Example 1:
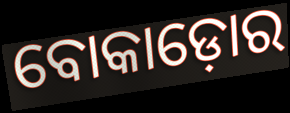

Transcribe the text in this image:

ବୋକାଡ଼ୋର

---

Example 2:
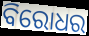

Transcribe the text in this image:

ବିରୋଧର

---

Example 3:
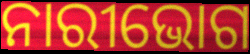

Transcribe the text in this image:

ନାରୀଭୋଗ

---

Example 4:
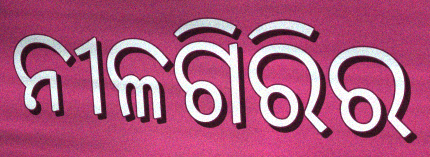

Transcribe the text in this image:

ନୀଳଗିରିର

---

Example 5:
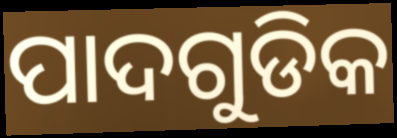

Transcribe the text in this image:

ପାଦଗୁଡିକ